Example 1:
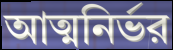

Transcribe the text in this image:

আত্মনির্ভর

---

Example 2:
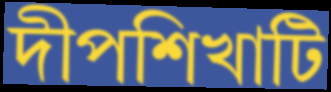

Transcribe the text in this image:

দীপশিখাটি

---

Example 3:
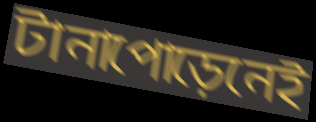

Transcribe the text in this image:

টানাপোড়েনেই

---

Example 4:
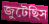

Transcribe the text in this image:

জুটেছিস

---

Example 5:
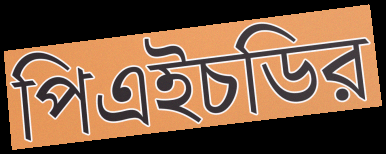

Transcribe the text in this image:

পিএইচডির